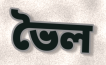
ভৈল